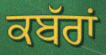
ਕਬੱਰਾਂ